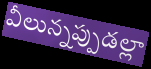
వీలున్నప్పుడల్లా